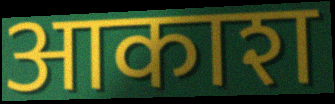
आकाश